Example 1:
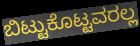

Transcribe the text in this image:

ಬಿಟ್ಟುಕೊಟ್ಟವರಲ್ಲ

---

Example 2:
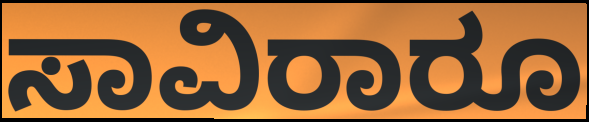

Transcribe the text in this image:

ಸಾವಿರಾರೂ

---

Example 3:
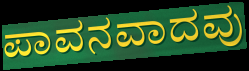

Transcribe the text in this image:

ಪಾವನವಾದವು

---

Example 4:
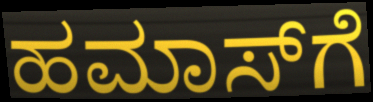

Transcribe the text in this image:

ಹಮಾಸ್‌ಗೆ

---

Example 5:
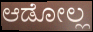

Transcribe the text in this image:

ಆಡೋಲ್ಲ